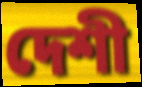
দেশী